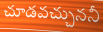
చూడవచ్చుననీ